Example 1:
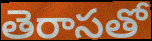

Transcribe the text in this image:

తెరాసతో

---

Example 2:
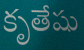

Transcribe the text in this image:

కృతేషు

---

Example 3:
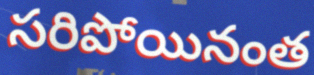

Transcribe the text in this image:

సరిపోయినంత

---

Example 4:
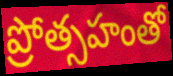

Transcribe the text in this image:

ప్రోత్సహంతో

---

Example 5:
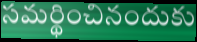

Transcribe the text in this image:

సమర్థించినందుకు